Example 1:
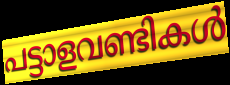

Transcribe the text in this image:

പട്ടാളവണ്ടികൾ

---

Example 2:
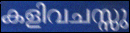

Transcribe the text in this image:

കളിവചസ്സു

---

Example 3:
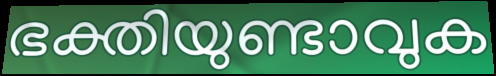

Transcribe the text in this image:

ഭക്തിയുണ്ടാവുക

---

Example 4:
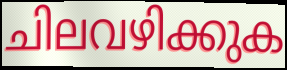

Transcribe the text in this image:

ചിലവഴിക്കുക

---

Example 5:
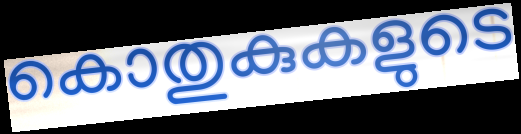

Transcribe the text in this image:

കൊതുകുകളുടെ